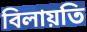
বিলায়তি